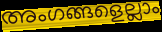
അംഗങ്ങളെല്ലാം